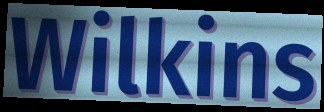
Wilkins